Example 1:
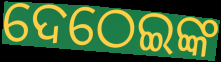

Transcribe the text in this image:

ଦେଠେଇଙ୍କ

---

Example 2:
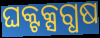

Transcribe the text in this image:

ଘକ୍ଟକ୍ସଗ୍ଧଷ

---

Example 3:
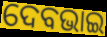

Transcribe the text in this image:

ଦେବଭାଇ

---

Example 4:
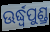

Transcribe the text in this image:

ଊର୍ଦ୍ଧ୍ୱପୁଣ୍ଡ୍ର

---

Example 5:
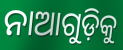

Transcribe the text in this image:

ନାଆଗୁଡ଼ିକୁ